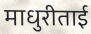
माधुरीताई